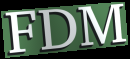
FDM